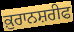
ਕ਼ੁਰਾਨਸ਼ਰੀਫ